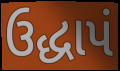
ઉદ્ધાપં